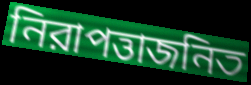
নিরাপত্তাজনিত